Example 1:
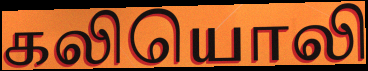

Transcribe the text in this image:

கலியொலி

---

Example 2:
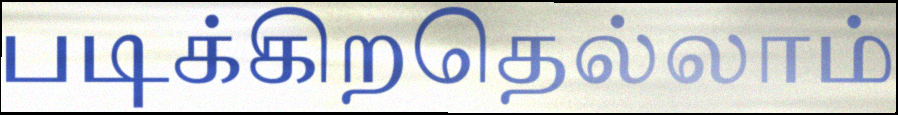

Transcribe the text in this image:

படிக்கிறதெல்லாம்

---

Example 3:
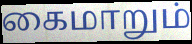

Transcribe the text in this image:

கைமாறும்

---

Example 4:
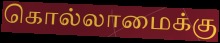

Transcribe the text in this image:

கொல்லாமைக்கு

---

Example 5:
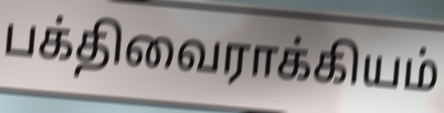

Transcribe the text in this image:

பக்திவைராக்கியம்